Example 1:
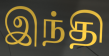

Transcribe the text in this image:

இந்தி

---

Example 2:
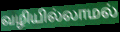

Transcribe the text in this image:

வழியில்லாமல்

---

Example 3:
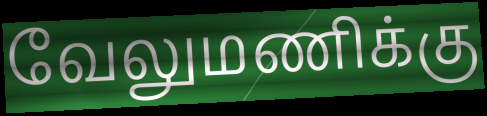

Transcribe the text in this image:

வேலுமணிக்கு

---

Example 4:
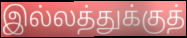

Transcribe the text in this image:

இல்லத்துக்குத்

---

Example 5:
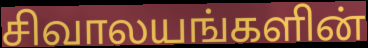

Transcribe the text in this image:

சிவாலயங்களின்